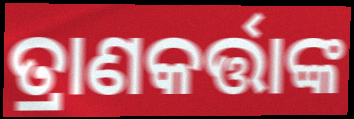
ତ୍ରାଣକର୍ତ୍ତାଙ୍କ